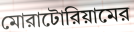
মোরাটোরিয়ামের